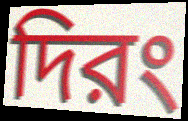
দিরং